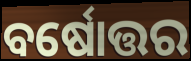
ବର୍ଷୋତ୍ତର